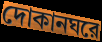
দোকানঘরে